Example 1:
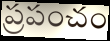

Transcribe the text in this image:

ప్రపంచం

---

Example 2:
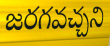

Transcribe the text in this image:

జరగవచ్చని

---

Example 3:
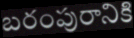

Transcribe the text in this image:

బరంపురానికి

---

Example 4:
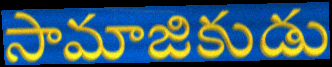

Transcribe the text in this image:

సామాజికుడు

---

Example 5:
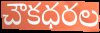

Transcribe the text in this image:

చౌకధరల